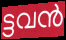
ട്ടവൻ